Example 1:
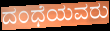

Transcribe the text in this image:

ದಂಧೆಯವರು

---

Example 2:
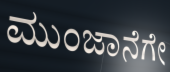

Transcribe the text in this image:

ಮುಂಜಾನೆಗೇ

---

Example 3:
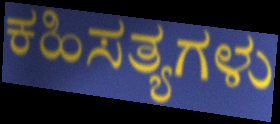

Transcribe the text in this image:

ಕಹಿಸತ್ಯಗಳು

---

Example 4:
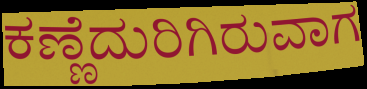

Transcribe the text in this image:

ಕಣ್ಣೆದುರಿಗಿರುವಾಗ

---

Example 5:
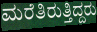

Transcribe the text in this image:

ಮರೆತಿರುತ್ತಿದ್ದರು